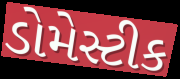
ડોમેસ્ટીક